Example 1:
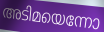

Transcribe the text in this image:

അടിമയെന്നോ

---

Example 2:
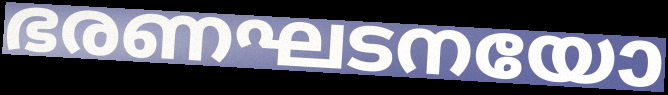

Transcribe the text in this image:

ഭരണഘടനയോ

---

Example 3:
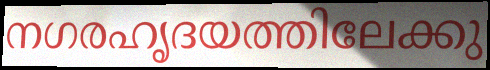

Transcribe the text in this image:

നഗരഹൃദയത്തിലേക്കു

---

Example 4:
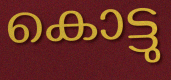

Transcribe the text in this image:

കൊട്ടു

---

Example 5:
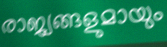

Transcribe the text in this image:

രാജ്യങ്ങളുമായും